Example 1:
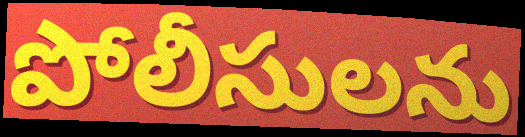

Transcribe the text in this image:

పోలీసులను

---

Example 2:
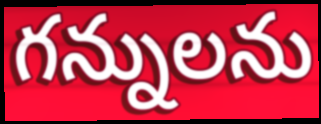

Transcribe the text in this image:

గన్నులను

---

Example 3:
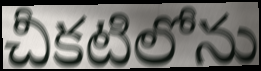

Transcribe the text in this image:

చీకటిలోను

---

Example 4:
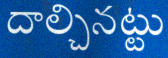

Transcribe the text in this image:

దాల్చినట్టు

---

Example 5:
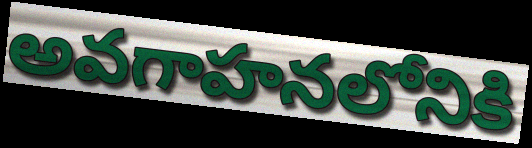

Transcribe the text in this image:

అవగాహనలోనికి